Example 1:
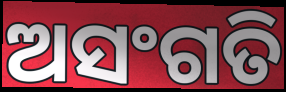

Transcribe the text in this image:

ଅସଂଗତି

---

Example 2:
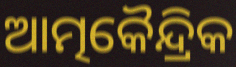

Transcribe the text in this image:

ଆତ୍ମକୈନ୍ଦ୍ରିକ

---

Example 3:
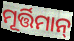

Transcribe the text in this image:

ମୂର୍ତ୍ତିମାନ୍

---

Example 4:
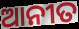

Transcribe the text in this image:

ଆନୀତ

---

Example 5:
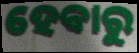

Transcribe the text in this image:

ହେଵାରୁ